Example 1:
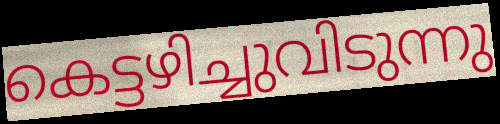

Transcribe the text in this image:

കെട്ടഴിച്ചുവിടുന്നു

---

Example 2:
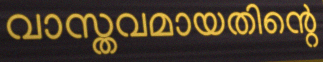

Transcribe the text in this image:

വാസ്തവമായതിന്റെ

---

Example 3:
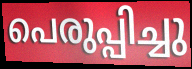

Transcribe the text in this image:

പെരുപ്പിച്ചു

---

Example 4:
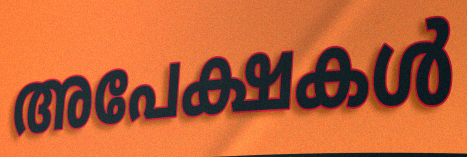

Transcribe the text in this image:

അപേക്ഷകൾ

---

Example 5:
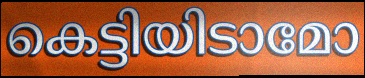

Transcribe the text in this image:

കെട്ടിയിടാമോ